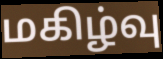
மகிழ்வு